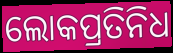
ଲୋକପ୍ରତିନିଧ